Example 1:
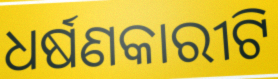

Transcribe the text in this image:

ଧର୍ଷଣକାରୀଟି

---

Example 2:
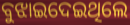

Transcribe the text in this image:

ବୁଝାଇଦେଇଥିଲେ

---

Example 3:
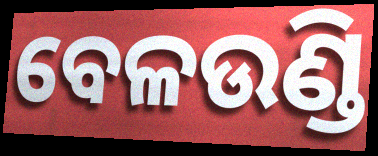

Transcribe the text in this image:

ବେଳଉଣ୍ଡି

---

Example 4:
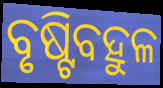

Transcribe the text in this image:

ବୃଷ୍ଟିବହୁଳ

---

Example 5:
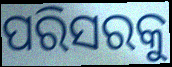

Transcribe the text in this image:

ପରିସରକୁ